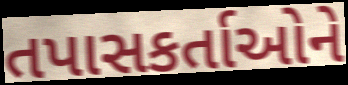
તપાસકર્તાઓને